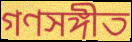
গণসঙ্গীত